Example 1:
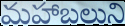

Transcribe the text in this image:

మహాబలుని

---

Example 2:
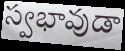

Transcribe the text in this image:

స్వభావుడా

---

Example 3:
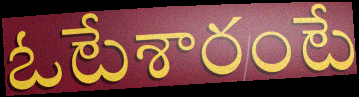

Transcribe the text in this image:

ఓటేశారంటే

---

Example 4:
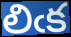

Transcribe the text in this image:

లిఁక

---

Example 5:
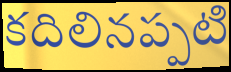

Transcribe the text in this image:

కదిలినప్పటి